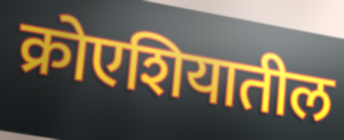
क्रोएशियातील